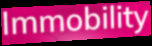
Immobility